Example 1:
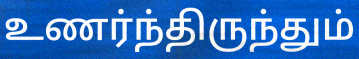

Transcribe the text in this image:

உணர்ந்திருந்தும்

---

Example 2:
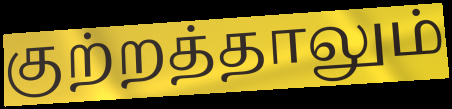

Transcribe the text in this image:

குற்றத்தாலும்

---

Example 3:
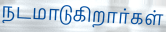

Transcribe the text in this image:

நடமாடுகிறார்கள்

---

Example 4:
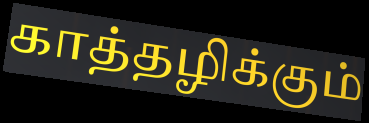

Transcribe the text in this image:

காத்தழிக்கும்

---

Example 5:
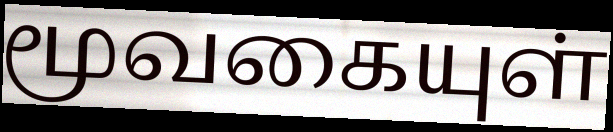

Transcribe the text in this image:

மூவகையுள்